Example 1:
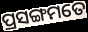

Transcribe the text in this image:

ପ୍ରସଙ୍ଗମତେ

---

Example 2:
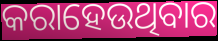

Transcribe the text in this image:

କରାହେଉଥିବାର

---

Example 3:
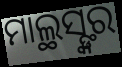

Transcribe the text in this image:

ମାଲ୍ଥସ୍ଙ୍କର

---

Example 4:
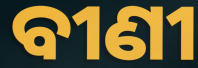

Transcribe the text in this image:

ବୀଣୀ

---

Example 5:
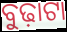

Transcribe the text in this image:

ବୁଢ଼ାଟା